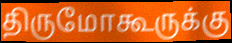
திருமோகூருக்கு